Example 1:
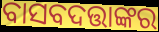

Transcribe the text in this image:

ବାସବଦତ୍ତାଙ୍କର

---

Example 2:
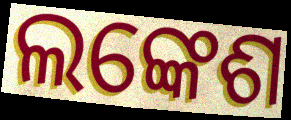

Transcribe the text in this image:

ଲଙ୍କେଶ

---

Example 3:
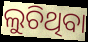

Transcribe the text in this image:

ଲୁଚିଥିବା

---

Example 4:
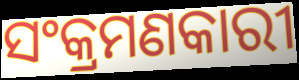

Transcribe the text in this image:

ସଂକ୍ରମଣକାରୀ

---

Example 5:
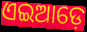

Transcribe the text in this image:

ଏଇଆଡ଼େ